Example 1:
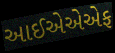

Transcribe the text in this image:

આઈએએએફ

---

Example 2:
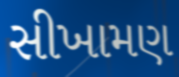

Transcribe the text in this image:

સીખામણ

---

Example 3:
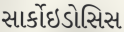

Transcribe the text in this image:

સાર્કોઇડોસિસ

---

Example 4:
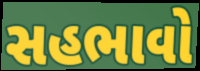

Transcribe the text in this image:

સહભાવો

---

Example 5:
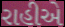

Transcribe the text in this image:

રાહીએ